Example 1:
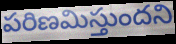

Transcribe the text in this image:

పరిణమిస్తుందని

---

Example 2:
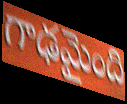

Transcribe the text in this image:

గాఢమైంది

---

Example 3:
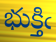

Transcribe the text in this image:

భుక్తిఁ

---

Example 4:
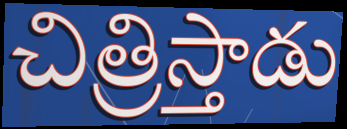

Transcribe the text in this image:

చిత్రిస్తాడు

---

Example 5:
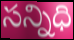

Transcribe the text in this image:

సన్నిధి